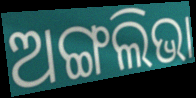
ଅଙ୍ଗଲିଭା